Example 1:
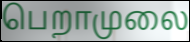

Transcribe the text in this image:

பெறாமுலை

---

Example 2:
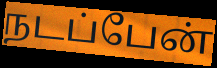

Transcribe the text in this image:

நடப்பேன்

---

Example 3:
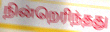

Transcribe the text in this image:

நின்றெரிந்தது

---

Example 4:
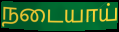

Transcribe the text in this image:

நடையாய்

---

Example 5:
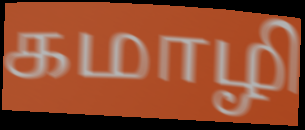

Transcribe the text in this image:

கமாழி